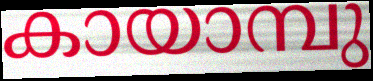
കായാമ്പു